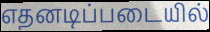
எதனடிப்படையில்